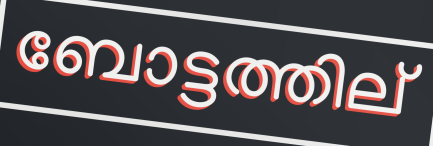
ബോട്ടത്തില്